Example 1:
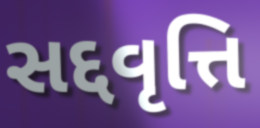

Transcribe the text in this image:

સદ્દવૃત્તિ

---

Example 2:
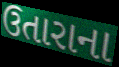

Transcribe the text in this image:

ઉતારાના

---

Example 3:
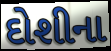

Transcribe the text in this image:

દોશીના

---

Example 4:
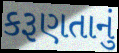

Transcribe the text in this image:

કરૂણતાનું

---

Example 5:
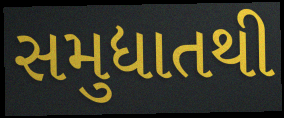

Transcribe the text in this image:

સમુદ્યાતથી